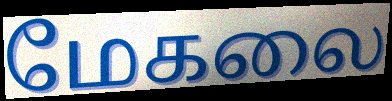
மேகலை